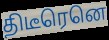
திடீரெனெ